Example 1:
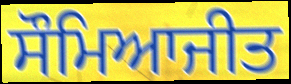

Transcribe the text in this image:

ਸੌਮਿਆਜੀਤ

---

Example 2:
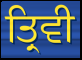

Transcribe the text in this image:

ਤ੍ਰਿਵੀ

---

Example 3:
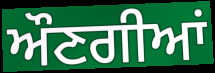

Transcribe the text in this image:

ਔਣਗੀਆਂ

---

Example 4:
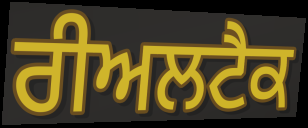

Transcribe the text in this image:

ਰੀਅਲਟੈਕ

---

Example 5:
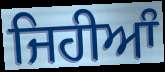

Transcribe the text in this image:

ਜਿਹੀਆੰ